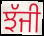
ਝੱਜੀ